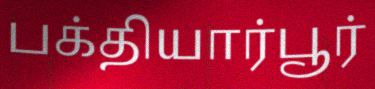
பக்தியார்பூர்